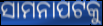
ସାମନାପଟକୁ